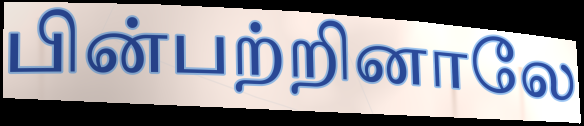
பின்பற்றினாலே